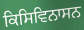
ਕਿਸਿਵਿਨਾਸਨ